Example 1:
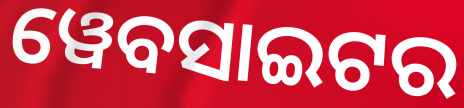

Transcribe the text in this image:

ୱେବସାଇଟର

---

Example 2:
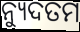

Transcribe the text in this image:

ନ୍ୟୁଦତମ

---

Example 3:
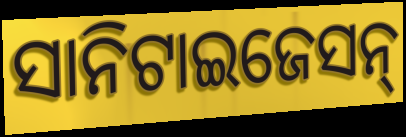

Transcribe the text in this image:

ସାନିଟାଇଜେସନ୍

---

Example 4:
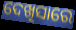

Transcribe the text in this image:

ଦେଖିସାରେ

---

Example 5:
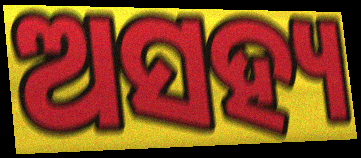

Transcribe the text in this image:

ଅସହ୍ୟ